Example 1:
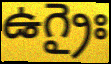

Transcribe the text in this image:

ఉగ్రైః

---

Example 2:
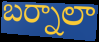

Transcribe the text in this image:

బర్నాలా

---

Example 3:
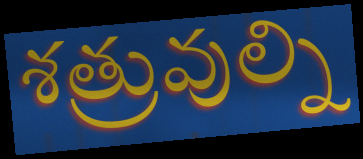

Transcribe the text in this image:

శత్రువుల్ని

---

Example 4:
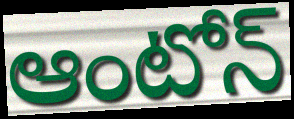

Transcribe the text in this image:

ఆంటోన్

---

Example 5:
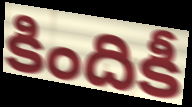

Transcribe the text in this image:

కిందికీ